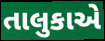
તાલુકાએ